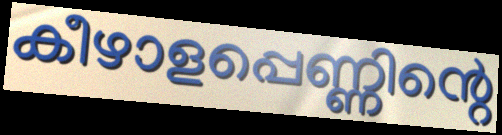
കീഴാളപ്പെണ്ണിന്റെ